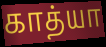
காத்யா